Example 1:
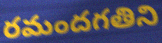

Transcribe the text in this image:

రమందగతిని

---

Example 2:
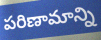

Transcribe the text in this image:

పరిణామాన్ని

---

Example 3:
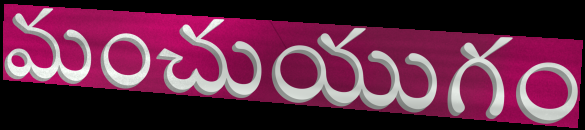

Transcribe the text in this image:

మంచుయుగం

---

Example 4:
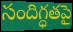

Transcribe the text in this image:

సందిగ్ధతపై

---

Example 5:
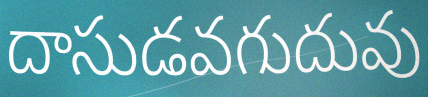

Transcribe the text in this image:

దాసుడవగుదువు